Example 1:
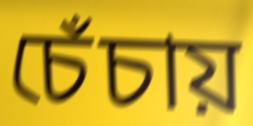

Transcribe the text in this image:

চেঁচায়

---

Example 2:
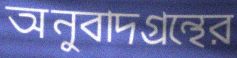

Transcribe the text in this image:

অনুবাদগ্রন্থের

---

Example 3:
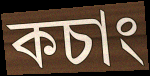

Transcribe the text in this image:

কচাং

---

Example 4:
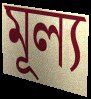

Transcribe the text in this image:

মূল্য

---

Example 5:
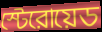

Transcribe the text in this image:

স্টেরোয়েড